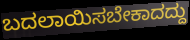
ಬದಲಾಯಿಸಬೇಕಾದದ್ದು